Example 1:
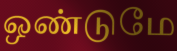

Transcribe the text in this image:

ஒண்டுமே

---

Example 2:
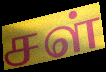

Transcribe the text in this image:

சள்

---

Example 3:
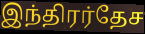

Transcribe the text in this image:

இந்திரர்தேச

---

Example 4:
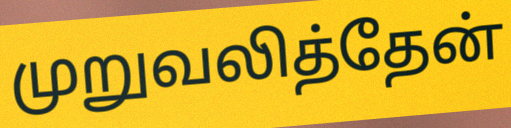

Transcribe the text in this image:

முறுவலித்தேன்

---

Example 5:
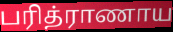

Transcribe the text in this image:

பரித்ராணாய